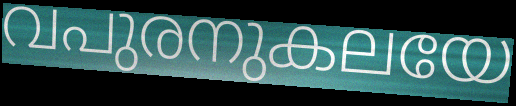
വപുരനുകലയേ